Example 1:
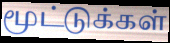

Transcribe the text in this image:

மூட்டுக்கள்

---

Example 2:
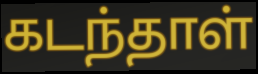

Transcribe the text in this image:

கடந்தாள்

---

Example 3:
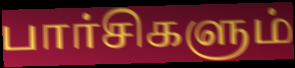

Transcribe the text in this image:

பார்சிகளும்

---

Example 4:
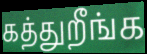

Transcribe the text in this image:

கத்துறீங்க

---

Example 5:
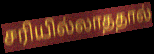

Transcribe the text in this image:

சரியில்லாததால்